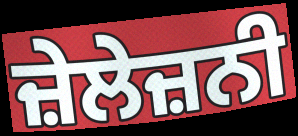
ਜ਼ੇਲੇਜ਼ਨੀ